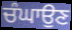
ਚੰਘਾਉਣ